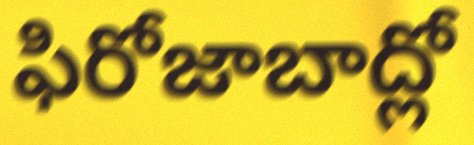
ఫిరోజాబాద్లో